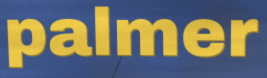
palmer